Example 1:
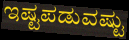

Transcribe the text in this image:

ಇಷ್ಟಪಡುವಷ್ಟು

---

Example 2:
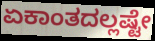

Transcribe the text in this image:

ಏಕಾಂತದಲ್ಲಷ್ಟೇ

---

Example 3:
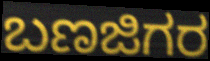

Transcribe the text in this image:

ಬಣಜಿಗರ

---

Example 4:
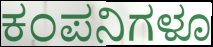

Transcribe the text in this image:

ಕಂಪನಿಗಳೂ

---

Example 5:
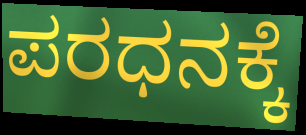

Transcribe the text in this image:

ಪರಧನಕ್ಕೆ